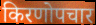
किरणोपचार